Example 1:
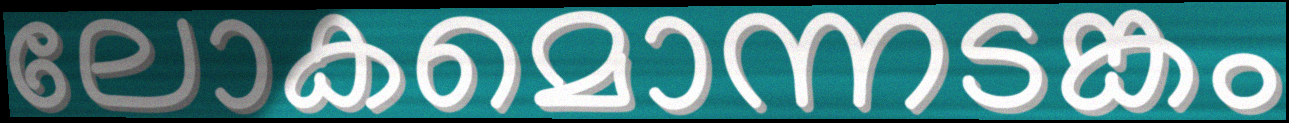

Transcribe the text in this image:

ലോകമൊന്നടങ്കം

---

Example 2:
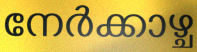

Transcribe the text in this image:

നേർക്കാഴ്ച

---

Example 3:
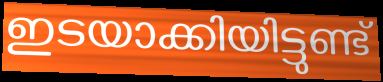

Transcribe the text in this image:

ഇടയാക്കിയിട്ടുണ്ട്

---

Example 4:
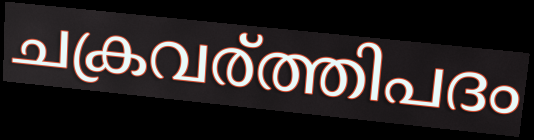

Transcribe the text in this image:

ചക്രവര്ത്തിപദം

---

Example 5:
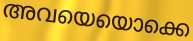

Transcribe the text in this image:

അവയെയൊക്കെ